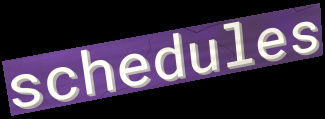
schedules